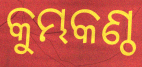
କୁମ୍ଭକଣ୍ଠ